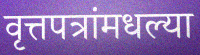
वृत्तपत्रांमधल्या